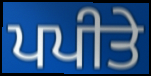
ਪਪੀਤੇ